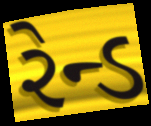
રેન્ડ